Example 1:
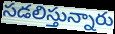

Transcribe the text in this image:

సడలిస్తున్నారు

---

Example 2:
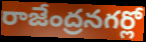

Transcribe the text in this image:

రాజేంద్రనగర్లో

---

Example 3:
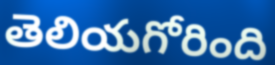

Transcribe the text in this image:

తెలియగోరింది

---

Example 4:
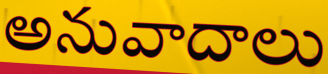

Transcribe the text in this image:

అనువాదాలు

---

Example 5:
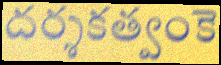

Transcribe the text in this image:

దర్శకత్వంకె